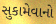
સુકામેવાનો